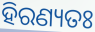
ହିରଣ୍ୟତଃ